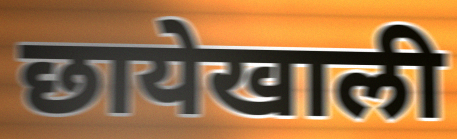
छायेखाली